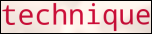
technique